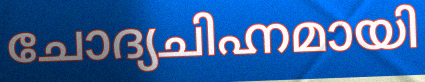
ചോദ്യചിഹ്നമായി